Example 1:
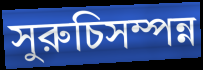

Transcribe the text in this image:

সুরুচিসম্পন্ন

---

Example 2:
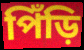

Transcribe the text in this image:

পিঁড়ি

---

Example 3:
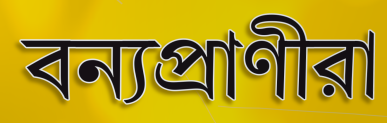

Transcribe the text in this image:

বন্যপ্রাণীরা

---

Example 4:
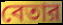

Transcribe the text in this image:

বেতার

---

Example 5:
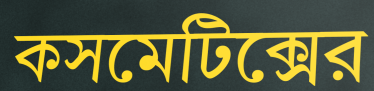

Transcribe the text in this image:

কসমেটিক্সের